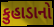
કુહાડાનો